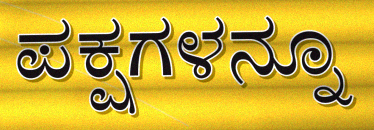
ಪಕ್ಷಗಳನ್ನೂ